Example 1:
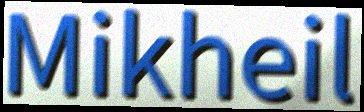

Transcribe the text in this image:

Mikheil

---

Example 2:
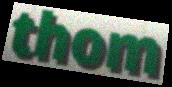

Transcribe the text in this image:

thom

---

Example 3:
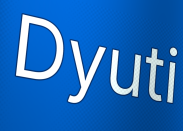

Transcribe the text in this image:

Dyuti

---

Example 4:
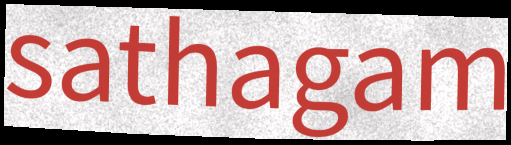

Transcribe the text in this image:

sathagam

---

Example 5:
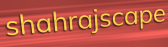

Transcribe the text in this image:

shahrajscape